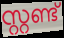
സ്റ്റണ്ട്